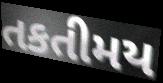
તકતીમય